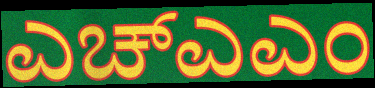
ಎಚ್ಎಎಂ